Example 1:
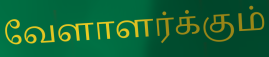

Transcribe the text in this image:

வேளாளர்க்கும்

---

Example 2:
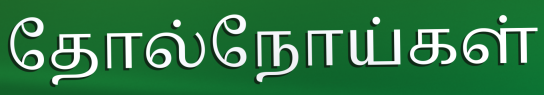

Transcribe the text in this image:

தோல்நோய்கள்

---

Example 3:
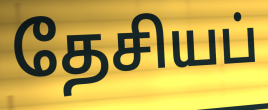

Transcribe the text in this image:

தேசியப்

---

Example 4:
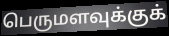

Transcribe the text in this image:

பெருமளவுக்குக்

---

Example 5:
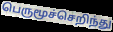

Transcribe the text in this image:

பெருமூச்செறிந்து